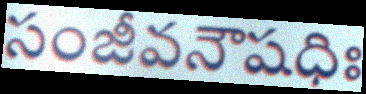
సంజీవనౌషధిః